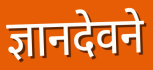
ज्ञानदेवने